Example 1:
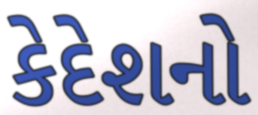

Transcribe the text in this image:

કેદેશનો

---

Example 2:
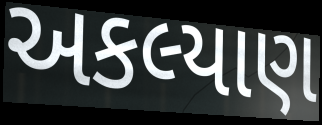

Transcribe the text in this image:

અકલ્યાણ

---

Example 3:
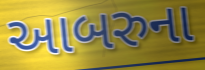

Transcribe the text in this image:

આબરુના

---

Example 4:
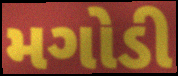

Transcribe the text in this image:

મગોડી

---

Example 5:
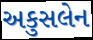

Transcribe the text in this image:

અકુસલેન